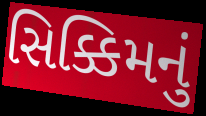
સિક્કિમનું